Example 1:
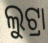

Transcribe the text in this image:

ଲୁଟ୍ରା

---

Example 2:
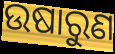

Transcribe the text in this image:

ଉଷାରୁଣ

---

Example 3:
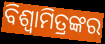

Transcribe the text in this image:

ବିଶ୍ୱାମିତ୍ରଙ୍କର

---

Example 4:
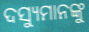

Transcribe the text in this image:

ଦସ୍ୟୁମାନଙ୍କୁ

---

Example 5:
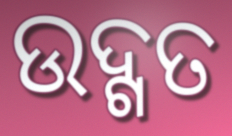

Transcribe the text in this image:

ଉଦ୍ଗତ